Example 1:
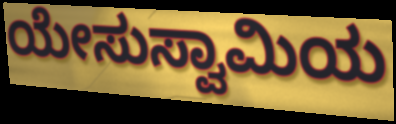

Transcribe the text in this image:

ಯೇಸುಸ್ವಾಮಿಯ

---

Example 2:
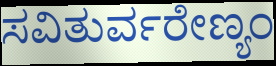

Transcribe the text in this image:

ಸವಿತುರ್ವರೇಣ್ಯಂ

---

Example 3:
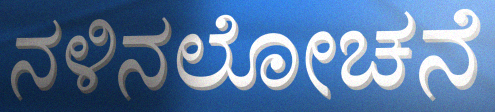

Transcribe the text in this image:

ನಳಿನಲೋಚನೆ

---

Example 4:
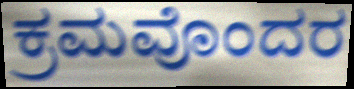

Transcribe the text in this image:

ಕ್ರಮವೊಂದರ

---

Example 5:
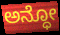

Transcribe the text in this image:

ಅನ್ಧೋ